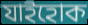
যাইহোক